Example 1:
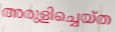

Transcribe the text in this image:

അരുളിച്ചെയ്ത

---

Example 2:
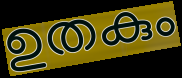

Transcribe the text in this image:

ഉതകും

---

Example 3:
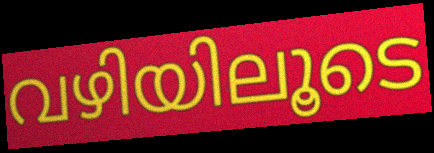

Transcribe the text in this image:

വഴിയിലൂടെ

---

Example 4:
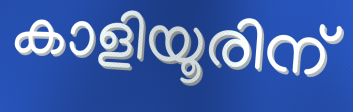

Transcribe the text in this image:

കാളിയൂരിന്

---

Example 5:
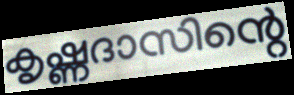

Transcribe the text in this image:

കൃഷ്ണദാസിന്റെ